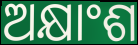
ଅକ୍ଷାଂଶ